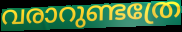
വരാറുണ്ടത്രേ